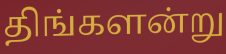
திங்களன்று